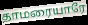
தாமரையாரே